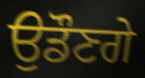
ਉਡੌਣਗੇ